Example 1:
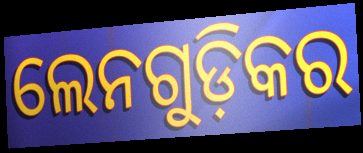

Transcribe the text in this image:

ଲେନଗୁଡ଼ିକର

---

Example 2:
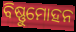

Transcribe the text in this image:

ବିଷ୍ଣୁମୋହନ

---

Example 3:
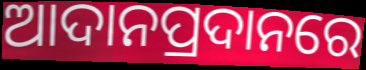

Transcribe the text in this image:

ଆଦାନପ୍ରଦାନରେ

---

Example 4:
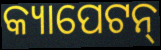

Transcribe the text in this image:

କ୍ୟାପେଟନ୍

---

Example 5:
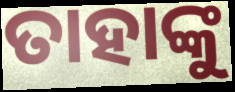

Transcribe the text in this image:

ତାହାଙ୍କୁ